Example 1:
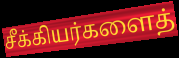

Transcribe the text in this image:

சீக்கியர்களைத்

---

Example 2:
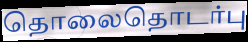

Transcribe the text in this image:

தொலைதொடர்பு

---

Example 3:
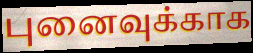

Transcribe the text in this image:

புனைவுக்காக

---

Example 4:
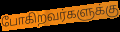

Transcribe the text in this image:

போகிறவர்களுக்கு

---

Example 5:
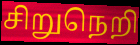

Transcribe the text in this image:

சிறுநெறி